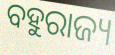
ବହୁରାଜ୍ୟ